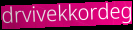
drvivekkordeg